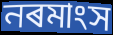
নৰমাংস